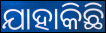
ଯାହାକିଛି